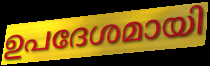
ഉപദേശമായി